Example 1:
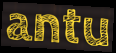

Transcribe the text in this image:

antu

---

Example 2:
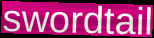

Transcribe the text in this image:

swordtail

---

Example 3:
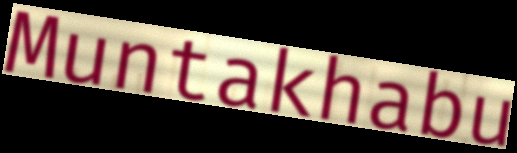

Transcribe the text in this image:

Muntakhabu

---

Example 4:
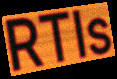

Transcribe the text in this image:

RTIs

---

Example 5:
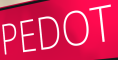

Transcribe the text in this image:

PEDOT